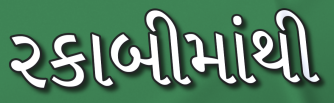
રકાબીમાંથી